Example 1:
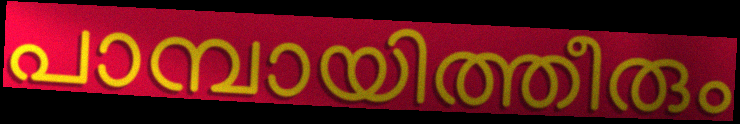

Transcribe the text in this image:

പാമ്പായിത്തീരും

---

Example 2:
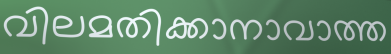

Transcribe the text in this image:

വിലമതിക്കാനാവാത്ത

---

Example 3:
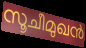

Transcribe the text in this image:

സൂചീമുഖൻ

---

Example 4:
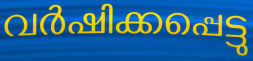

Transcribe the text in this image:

വർഷിക്കപ്പെട്ടു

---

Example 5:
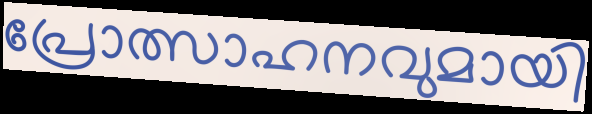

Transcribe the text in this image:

പ്രോത്സാഹനവുമായി